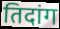
तिदांग